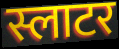
स्लाटर